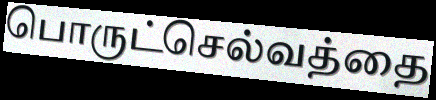
பொருட்செல்வத்தை